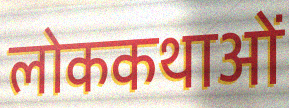
लोककथाओं